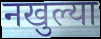
नखुल्या